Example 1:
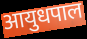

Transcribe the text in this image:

आयुधपाल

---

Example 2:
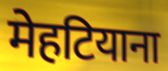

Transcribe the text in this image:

मेहटियाना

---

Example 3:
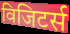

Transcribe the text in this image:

विजिटर्स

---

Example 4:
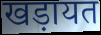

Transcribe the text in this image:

खड़ायत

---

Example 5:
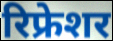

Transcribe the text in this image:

रिफ्रेशर